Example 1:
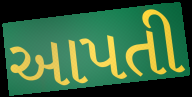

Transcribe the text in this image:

આપતી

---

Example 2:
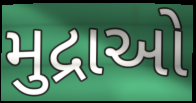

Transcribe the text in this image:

મુદ્રાઓ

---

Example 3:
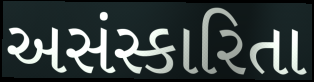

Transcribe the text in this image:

અસંસ્કારિતા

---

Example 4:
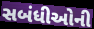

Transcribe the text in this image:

સબંધીઓની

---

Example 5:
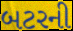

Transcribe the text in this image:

બટરની